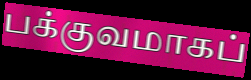
பக்குவமாகப்